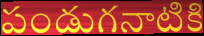
పండుగనాటికి